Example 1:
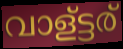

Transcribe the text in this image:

വാള്ട്ടര്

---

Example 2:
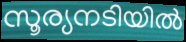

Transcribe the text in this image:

സൂര്യനടിയിൽ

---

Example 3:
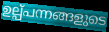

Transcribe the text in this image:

ഉല്പ്പന്നങ്ങളുടെ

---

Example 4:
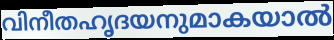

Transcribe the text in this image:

വിനീതഹൃദയനുമാകയാൽ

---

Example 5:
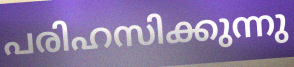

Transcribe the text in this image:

പരിഹസിക്കുന്നു